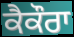
ਕੈਕੌਰਾ